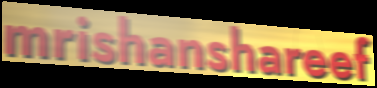
mrishanshareef